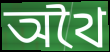
অথৈ